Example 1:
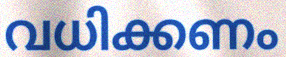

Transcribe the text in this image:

വധിക്കണം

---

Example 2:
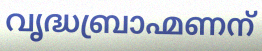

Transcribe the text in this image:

വൃദ്ധബ്രാഹ്മണന്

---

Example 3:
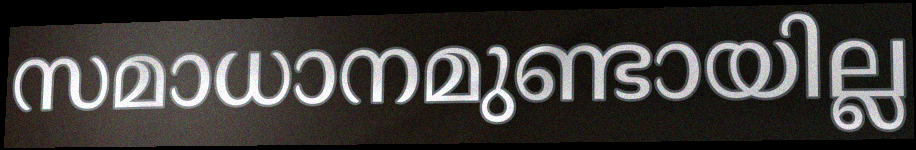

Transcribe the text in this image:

സമാധാനമുണ്ടായില്ല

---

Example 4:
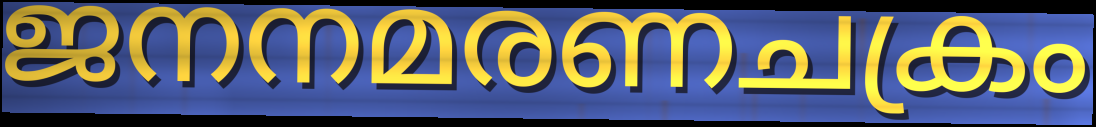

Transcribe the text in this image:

ജനനമരണചക്രം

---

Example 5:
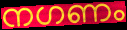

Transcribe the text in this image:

നഗണം